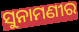
ସୁନାମଣୀର